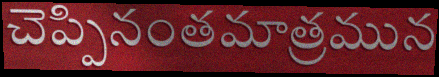
చెప్పినంతమాత్రమున